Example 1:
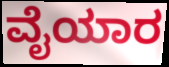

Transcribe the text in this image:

ವೈಯಾರ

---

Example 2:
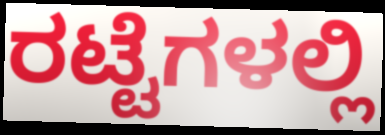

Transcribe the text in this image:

ರಟ್ಟೆಗಳಲ್ಲಿ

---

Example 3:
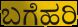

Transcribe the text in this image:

ಬಗೆಹರಿ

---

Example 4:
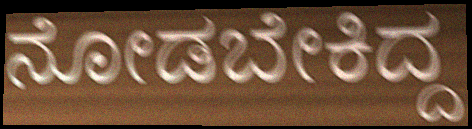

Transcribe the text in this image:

ನೋಡಬೇಕಿದ್ದ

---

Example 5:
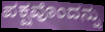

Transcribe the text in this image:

ಪಕ್ಷವೊಂದನ್ನು